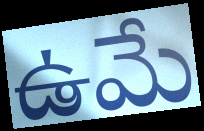
ఉమే